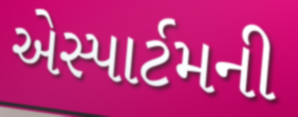
એસ્પાર્ટમની